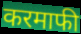
करमाफी